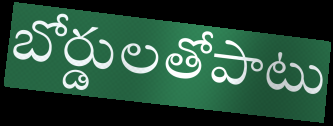
బోర్డులతోపాటు